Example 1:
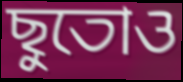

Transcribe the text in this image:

ছুতোও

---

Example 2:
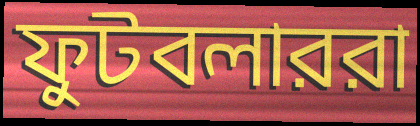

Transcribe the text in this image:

ফুটবলাররা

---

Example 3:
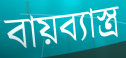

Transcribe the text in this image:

বায়ব্যাস্ত্র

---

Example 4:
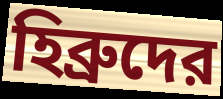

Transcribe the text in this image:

হিব্রুদের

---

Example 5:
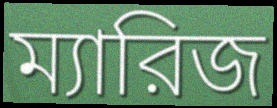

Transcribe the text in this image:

ম্যারিজ